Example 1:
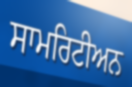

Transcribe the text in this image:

ਸਾਮਰਿਟੀਅਨ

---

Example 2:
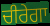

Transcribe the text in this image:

ਚੀਰੇਗਾ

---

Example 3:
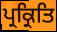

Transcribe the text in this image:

ਪ੍ਰਕ੍ਰਿਤਿ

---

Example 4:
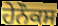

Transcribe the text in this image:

ਹੇਨੌਕਸ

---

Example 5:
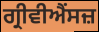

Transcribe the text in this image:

ਗ੍ਰੀਵੀਐਂਸਜ਼